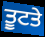
ਤੂਟਤੇ